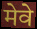
मेवे